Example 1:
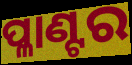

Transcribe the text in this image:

ପ୍ଳାଣ୍ଟର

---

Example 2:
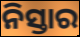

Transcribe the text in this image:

ନିସ୍ତାର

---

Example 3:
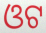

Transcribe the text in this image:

ଓଟ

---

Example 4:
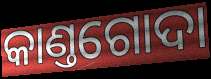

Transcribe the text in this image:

କାଣ୍ତଗୋଦା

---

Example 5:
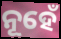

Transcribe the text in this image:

ନୂହେଁ